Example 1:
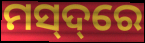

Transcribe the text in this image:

ମସ୍‌ଦ୍‌ରେ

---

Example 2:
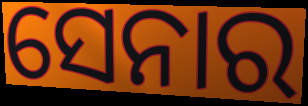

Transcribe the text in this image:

ସେନାର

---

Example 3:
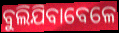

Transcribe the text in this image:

ବୁଲିଯିବାବେଳେ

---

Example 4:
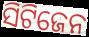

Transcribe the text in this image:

ସିଟିଜେନ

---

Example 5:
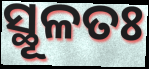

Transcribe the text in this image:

ସ୍ଥୂଳତଃ